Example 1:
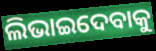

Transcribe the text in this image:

ଲିଭାଇଦେବାକୁ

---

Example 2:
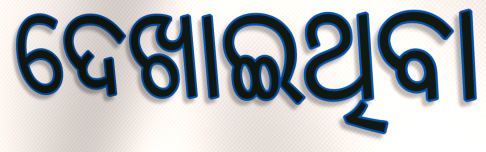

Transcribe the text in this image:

ଦେଖାଇଥିବା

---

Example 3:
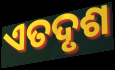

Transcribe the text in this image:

ଏତଦୃଶ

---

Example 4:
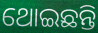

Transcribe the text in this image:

ଥୋଇଛନ୍ତି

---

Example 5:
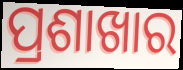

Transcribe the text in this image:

ପ୍ରଶାଖାର